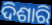
ଦିଶାରି